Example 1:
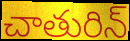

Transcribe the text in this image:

చాతురిన్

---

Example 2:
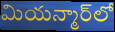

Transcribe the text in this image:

మియన్మార్‌లో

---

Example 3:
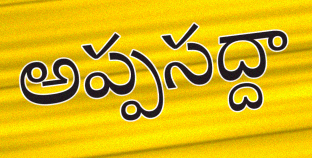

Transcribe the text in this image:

అప్పసద్దా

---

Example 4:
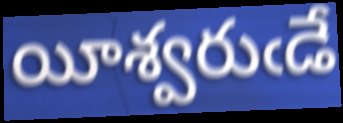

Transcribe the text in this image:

యీశ్వరుఁడే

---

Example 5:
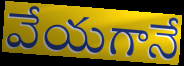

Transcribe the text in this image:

వేయగానే